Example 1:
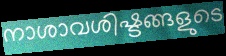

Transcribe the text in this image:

നാശാവശിഷ്ടങ്ങളുടെ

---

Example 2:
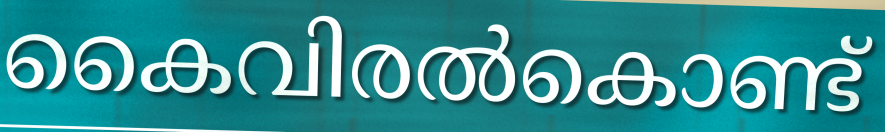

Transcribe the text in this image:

കൈവിരൽകൊണ്ട്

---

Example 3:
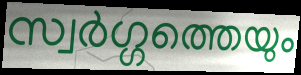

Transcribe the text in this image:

സ്വർഗ്ഗത്തെയും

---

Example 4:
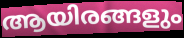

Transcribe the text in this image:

ആയിരങ്ങളും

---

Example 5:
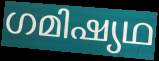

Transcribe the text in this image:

ഗമിഷ്യഥ